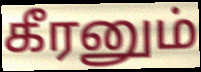
கீரனும்